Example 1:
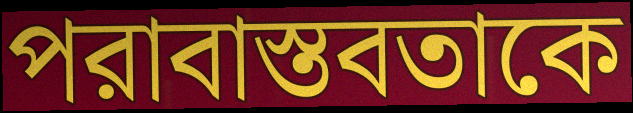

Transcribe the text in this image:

পরাবাস্তবতাকে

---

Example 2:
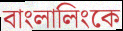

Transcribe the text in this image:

বাংলালিংকে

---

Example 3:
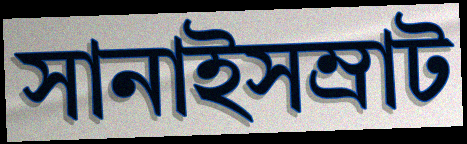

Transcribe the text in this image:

সানাইসম্রাট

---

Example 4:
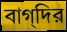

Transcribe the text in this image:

বাগ্‌দির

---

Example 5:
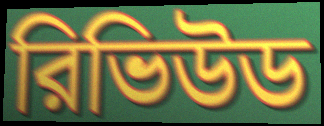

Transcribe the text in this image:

রিভিউড